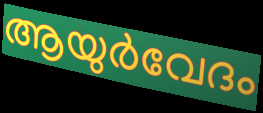
ആയുർവേദം